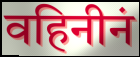
वहिनीनं